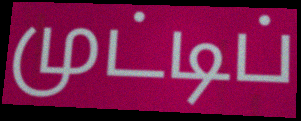
முட்டிப்